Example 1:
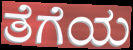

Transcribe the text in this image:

ತೆಗೆಯ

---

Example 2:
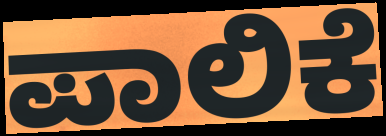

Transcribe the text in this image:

ಪಾಲಿಕೆ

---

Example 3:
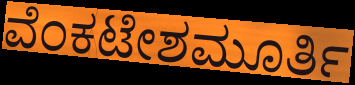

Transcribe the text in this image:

ವೆಂಕಟೇಶಮೂರ್ತಿ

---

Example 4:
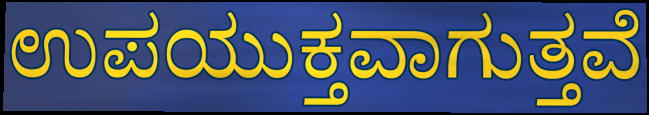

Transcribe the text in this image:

ಉಪಯುಕ್ತವಾಗುತ್ತವೆ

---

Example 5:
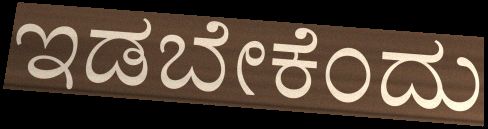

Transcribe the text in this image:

ಇಡಬೇಕೆಂದು